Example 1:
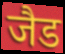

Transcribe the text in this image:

जैड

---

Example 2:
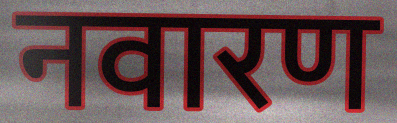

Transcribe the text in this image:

नवारण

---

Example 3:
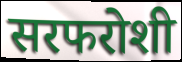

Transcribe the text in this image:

सरफरोशी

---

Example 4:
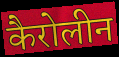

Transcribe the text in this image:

कैरोलीन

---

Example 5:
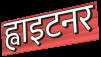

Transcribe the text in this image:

ह्वाइटनर